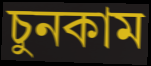
চুনকাম